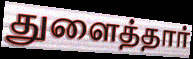
துளைத்தார்